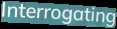
Interrogating